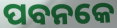
ପବନକେ